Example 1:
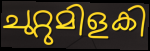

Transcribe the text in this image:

ചുറ്റുമിളകി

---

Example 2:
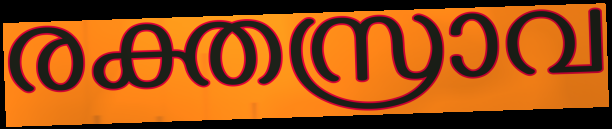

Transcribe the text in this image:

രക്തസ്രാവ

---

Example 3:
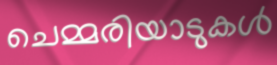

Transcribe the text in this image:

ചെമ്മരിയാടുകൾ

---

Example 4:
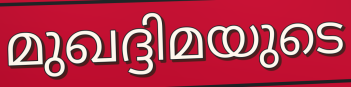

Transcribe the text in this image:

മുഖദ്ദിമയുടെ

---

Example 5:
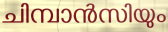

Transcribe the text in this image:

ചിമ്പാൻസിയും